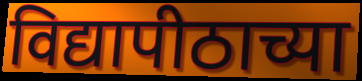
विद्यापीठाच्या